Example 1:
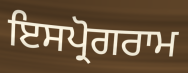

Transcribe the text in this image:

ਇਸਪ੍ਰੋਗਰਾਮ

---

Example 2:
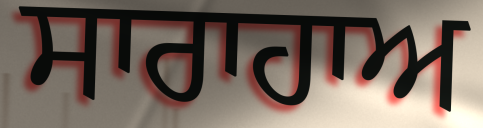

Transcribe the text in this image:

ਸਾਰਾਹਾਅ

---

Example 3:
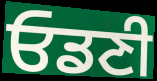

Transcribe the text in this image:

ਓਡਣੀ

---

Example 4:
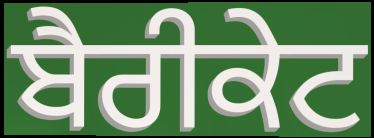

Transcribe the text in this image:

ਬੈਰੀਕੇਟ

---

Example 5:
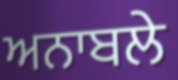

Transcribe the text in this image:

ਅਨਾਬਲੇ